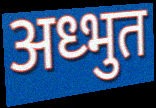
अध्भुत